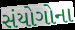
સંયોગોના